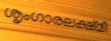
ശൃംഗാരലക്ഷ്മീ